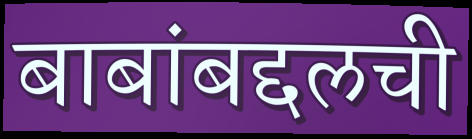
बाबांबद्दलची